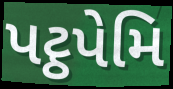
પટ્ઠપેમિ